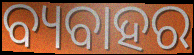
ବ୍ୟବାହର